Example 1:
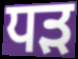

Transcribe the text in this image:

ਧੜ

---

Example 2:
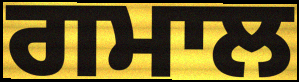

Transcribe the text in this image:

ਗਮਾਲ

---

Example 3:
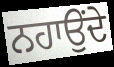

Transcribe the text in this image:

ਨਹਾਉਂਦੇ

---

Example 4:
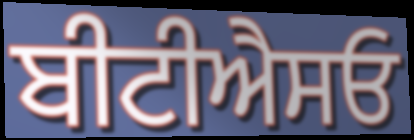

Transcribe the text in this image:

ਬੀਟੀਐਸਓ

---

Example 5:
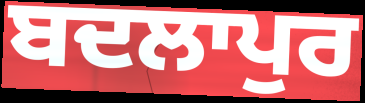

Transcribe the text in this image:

ਬਦਲਾਪੁਰ